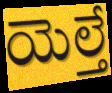
యెల్తే